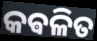
କଵଳିତ